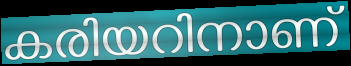
കരിയറിനാണ്